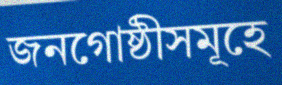
জনগোষ্ঠীসমূহে